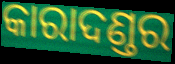
କାରାଦଣ୍ଡର